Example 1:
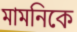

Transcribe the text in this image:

মামনিকে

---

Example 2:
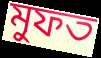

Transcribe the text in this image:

মুফত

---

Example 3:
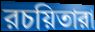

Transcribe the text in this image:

রচয়িতারা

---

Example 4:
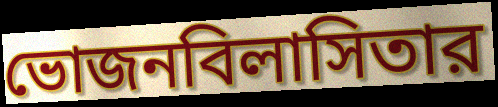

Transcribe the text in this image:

ভোজনবিলাসিতার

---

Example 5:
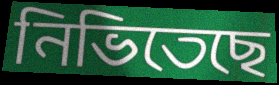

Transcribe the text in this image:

নিভিতেছে